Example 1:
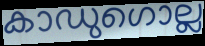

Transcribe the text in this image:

കാഡുഗൊല്ല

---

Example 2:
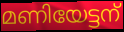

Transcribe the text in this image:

മണിയേട്ടന്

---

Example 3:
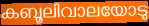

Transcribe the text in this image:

കബൂലിവാലയോടു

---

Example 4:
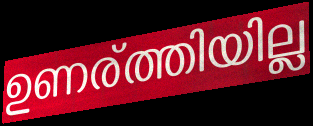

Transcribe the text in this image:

ഉണര്ത്തിയില്ല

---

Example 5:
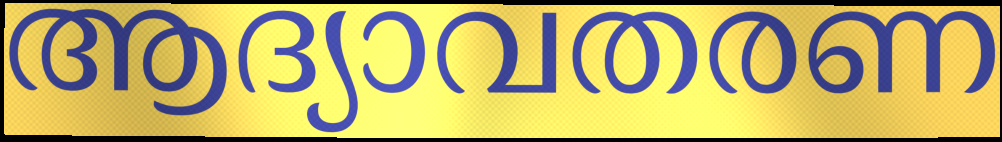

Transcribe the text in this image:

ആദ്യാവതരണ